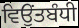
ਵਿਉਂਤਬੰਧੀ